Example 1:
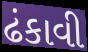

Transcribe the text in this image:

ઢંકાવી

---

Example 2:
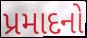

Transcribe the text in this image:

પ્રમાદનો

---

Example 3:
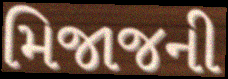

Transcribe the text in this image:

મિજાજની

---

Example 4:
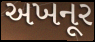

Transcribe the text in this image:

અખનૂર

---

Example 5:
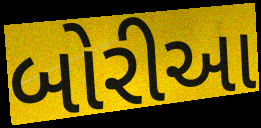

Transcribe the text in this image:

બોરીઆ